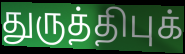
துருத்திபுக்